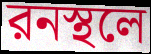
রনস্থলে